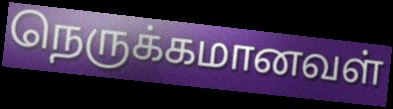
நெருக்கமானவள்